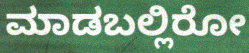
ಮಾಡಬಲ್ಲಿರೋ